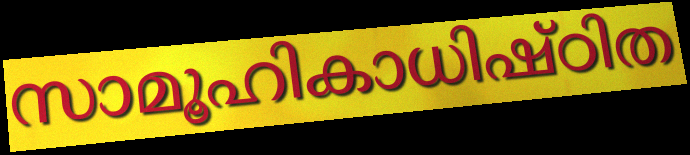
സാമൂഹികാധിഷ്ഠിത